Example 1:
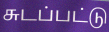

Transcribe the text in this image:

சுடப்பட்டு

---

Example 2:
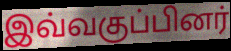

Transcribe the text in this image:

இவ்வகுப்பினர்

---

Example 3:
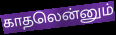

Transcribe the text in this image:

காதலென்னும்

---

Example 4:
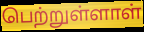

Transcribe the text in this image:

பெற்றுள்ளாள்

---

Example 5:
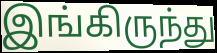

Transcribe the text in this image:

இங்கிருந்து